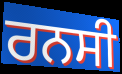
ਰਨਸੀ